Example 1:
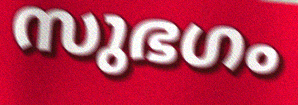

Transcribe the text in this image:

സുഭഗം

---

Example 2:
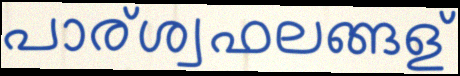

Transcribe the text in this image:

പാര്ശ്വഫലങ്ങള്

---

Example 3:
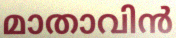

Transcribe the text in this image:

മാതാവിൻ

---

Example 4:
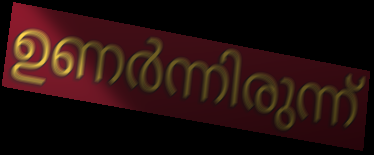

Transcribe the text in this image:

ഉണർന്നിരുന്ന്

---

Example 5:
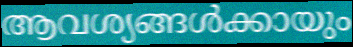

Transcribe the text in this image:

ആവശ്യങ്ങൾക്കായും